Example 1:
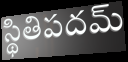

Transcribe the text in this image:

స్థితిపదమ్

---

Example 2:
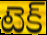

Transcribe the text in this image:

టెక్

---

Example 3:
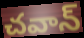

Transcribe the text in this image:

చవాన్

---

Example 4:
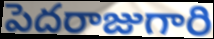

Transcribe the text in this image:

పెదరాజుగారి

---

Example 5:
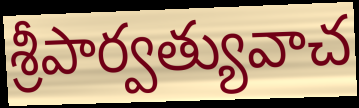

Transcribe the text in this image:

శ్రీపార్వత్యువాచ